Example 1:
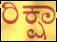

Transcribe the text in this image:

ರಿಕ್ಷಾ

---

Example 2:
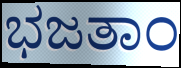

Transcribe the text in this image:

ಭಜತಾಂ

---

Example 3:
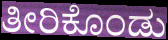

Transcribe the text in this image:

ತೀರಿಕೊಂಡು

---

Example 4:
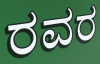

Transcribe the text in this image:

ರವರ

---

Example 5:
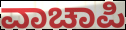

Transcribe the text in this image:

ವಾಚಾಪಿ